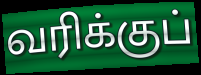
வரிக்குப்